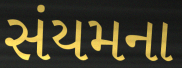
સંયમના